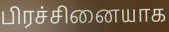
பிரச்சினையாக